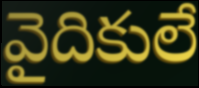
వైదికులే